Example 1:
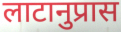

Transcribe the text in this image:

लाटानुप्रास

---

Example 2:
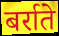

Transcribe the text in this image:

बर्राते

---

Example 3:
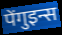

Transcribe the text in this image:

पेंगुइन्स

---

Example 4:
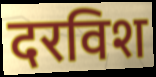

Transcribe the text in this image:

दरविश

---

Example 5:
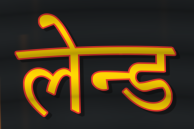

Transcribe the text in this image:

लेन्ड